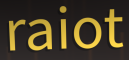
raiot